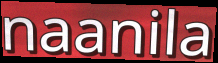
naanila